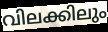
വിലക്കിലും